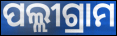
ପଲ୍ଲୀଗ୍ରାମ